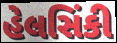
હેલસિંકી